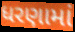
ધરણામાં